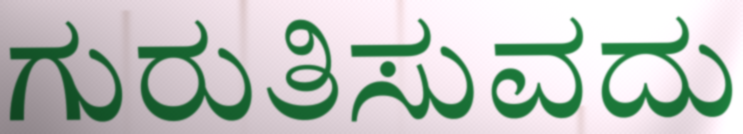
ಗುರುತಿಸುವದು